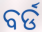
ବର୍ଡ